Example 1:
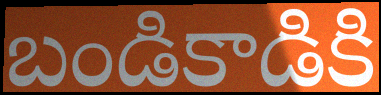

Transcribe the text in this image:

బండికాడికి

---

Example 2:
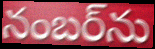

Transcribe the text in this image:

నంబర్‌ను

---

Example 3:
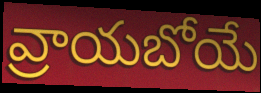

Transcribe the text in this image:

వ్రాయబోయే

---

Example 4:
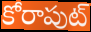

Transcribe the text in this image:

కోరాపుట్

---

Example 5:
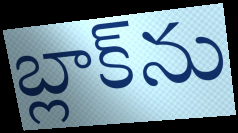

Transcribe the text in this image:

బ్లాక్‌ను